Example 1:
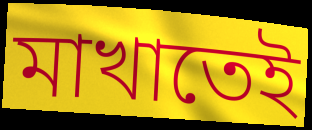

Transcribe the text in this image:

মাখাতেই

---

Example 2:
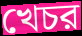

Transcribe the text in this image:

খেচর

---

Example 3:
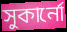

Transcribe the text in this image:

সুকার্নো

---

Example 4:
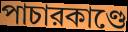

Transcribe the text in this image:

পাচারকাণ্ডে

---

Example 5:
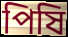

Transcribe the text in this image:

পিষি